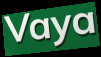
Vaya